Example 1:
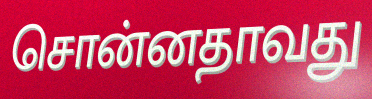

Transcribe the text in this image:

சொன்னதாவது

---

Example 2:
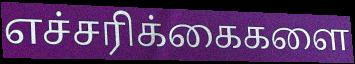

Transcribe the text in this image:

எச்சரிக்கைகளை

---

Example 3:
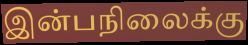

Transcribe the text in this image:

இன்பநிலைக்கு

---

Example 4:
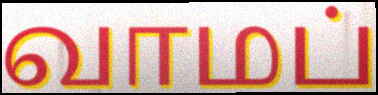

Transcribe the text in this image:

வாமப்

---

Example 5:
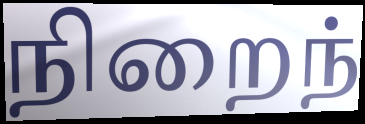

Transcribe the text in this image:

நிறைந்